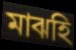
মাঝহি